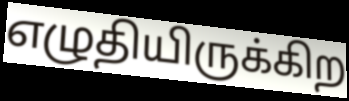
எழுதியிருக்கிற